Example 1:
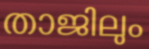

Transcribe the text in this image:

താജിലും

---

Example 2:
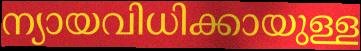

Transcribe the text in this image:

ന്യായവിധിക്കായുള്ള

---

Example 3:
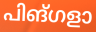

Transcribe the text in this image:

പിങ്ഗളാ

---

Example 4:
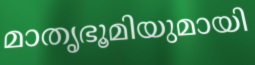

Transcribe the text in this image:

മാതൃഭൂമിയുമായി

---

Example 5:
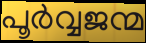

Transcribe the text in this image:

പൂർവ്വജന്മ